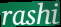
rashi